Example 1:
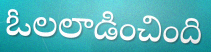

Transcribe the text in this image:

ఓలలాడించింది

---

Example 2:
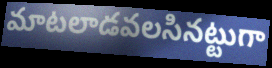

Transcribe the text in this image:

మాటలాడవలసినట్టుగా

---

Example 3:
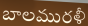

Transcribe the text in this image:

బాలమురళీ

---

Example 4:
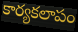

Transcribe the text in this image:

కార్యకలాపం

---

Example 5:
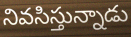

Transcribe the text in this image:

నివసిస్తున్నాడు